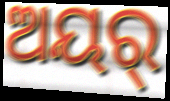
ଅୟର୍